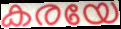
കരയേ